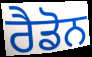
ਰੈਡੋਨ